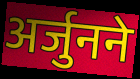
अर्जुनने